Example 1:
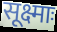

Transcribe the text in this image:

सूक्ष्माः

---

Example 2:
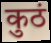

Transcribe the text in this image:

कुठं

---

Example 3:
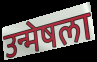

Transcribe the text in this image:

उन्मेषला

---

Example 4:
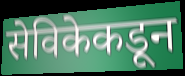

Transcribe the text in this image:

सेविकेकडून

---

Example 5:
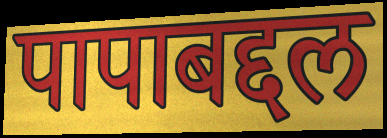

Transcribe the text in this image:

पापाबद्दल